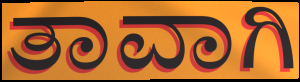
ತಾವಾಗಿ